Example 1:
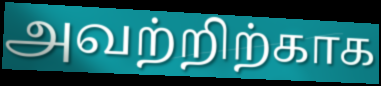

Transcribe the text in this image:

அவற்றிற்காக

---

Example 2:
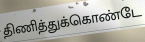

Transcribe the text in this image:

திணித்துக்கொண்டே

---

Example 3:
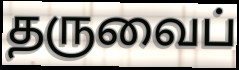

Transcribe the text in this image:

தருவைப்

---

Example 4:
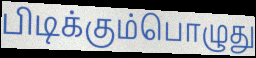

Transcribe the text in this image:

பிடிக்கும்பொழுது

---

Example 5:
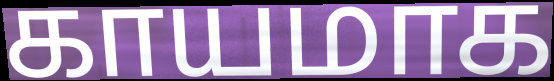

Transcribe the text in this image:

காயமாக